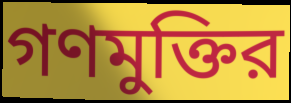
গণমুক্তির